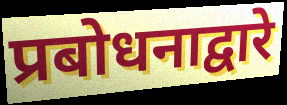
प्रबोधनाद्वारे